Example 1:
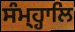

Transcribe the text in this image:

ਸੰਮ੍ਹ੍ਹਾਲਿ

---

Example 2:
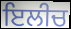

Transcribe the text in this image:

ਇਲੀਚ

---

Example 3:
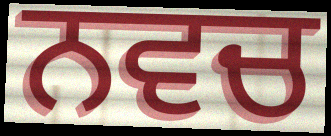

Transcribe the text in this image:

ਨਵਚ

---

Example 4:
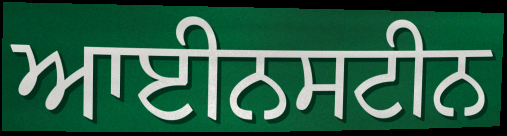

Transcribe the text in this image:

ਆਈਨਸਟੀਨ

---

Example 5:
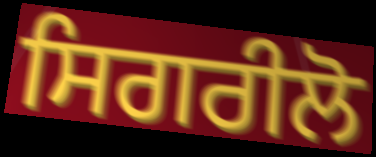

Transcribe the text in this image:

ਸਿਗਰੀਲੋ